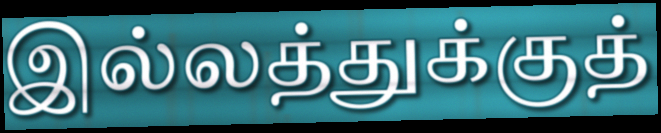
இல்லத்துக்குத்